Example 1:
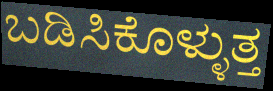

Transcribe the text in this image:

ಬಡಿಸಿಕೊಳ್ಳುತ್ತ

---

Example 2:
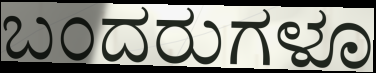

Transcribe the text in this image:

ಬಂದರುಗಳೂ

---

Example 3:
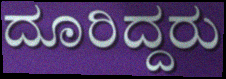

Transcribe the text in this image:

ದೂರಿದ್ದರು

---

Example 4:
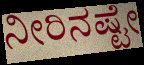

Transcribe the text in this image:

ನೀರಿನಷ್ಟೇ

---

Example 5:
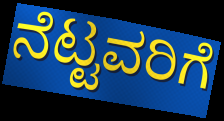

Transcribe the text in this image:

ನೆಟ್ಟವರಿಗೆ